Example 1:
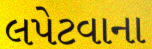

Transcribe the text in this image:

લપેટવાના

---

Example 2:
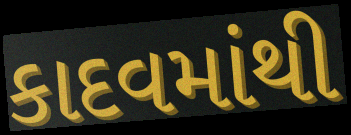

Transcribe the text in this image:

કાદવમાંથી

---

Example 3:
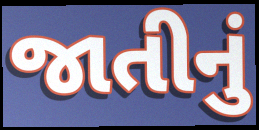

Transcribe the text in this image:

જાતીનું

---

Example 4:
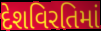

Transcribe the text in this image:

દેશવિરતિમાં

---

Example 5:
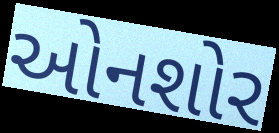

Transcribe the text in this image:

ઓનશોર